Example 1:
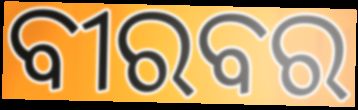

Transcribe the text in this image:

ବୀରବର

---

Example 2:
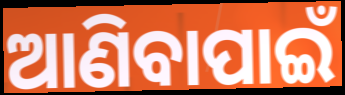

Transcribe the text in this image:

ଆଣିବାପାଇଁ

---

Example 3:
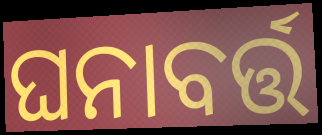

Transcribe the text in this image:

ଘନାବର୍ତ୍ତ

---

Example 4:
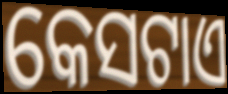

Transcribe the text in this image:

କେସଟାଏ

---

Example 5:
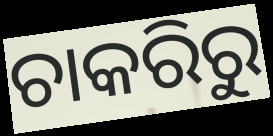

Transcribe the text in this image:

ଚାକରିରୁ